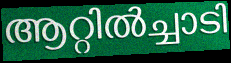
ആറ്റിൽച്ചാടി